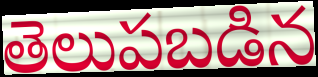
తెలుపబడిన